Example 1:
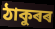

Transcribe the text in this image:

ঠাকুৰৰ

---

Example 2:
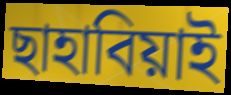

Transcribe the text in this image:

ছাহাবিয়াই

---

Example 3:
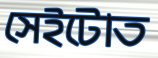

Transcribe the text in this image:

সেইটোত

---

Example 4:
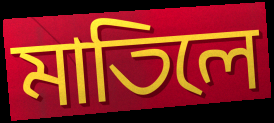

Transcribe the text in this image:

মাতিলে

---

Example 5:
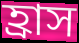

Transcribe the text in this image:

হ্ৰাস